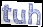
tuh